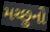
મચ્છુનો